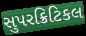
સુપરક્રિટિકલ